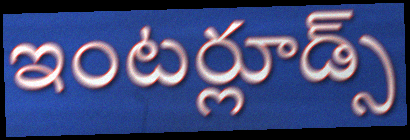
ఇంటర్లూడ్స్